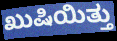
ಖುಷಿಯಿತ್ತು